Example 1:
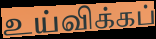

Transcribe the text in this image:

உய்விக்கப்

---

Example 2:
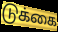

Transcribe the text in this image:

டுக்கை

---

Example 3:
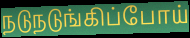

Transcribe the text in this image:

நடுநடுங்கிப்போய்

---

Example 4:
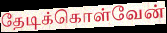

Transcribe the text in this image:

தேடிக்கொள்வேன்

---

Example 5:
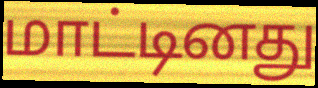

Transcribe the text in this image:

மாட்டினது